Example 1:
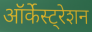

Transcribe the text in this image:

ऑर्केस्ट्रेशन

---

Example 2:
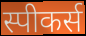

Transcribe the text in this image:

स्पीकर्स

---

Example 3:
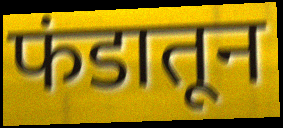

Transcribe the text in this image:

फंडातून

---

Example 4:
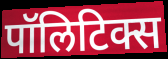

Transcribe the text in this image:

पॉलिटिक्स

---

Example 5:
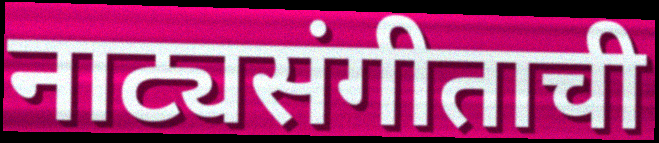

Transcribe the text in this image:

नाट्यसंगीताची